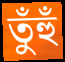
তুঁহুঁ